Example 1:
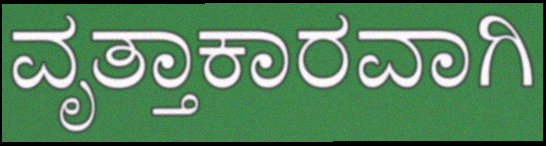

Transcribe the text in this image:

ವೃತ್ತಾಕಾರವಾಗಿ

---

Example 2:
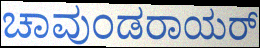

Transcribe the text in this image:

ಚಾವುಂಡರಾಯರ್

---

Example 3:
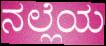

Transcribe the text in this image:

ನಲ್ಲೆಯ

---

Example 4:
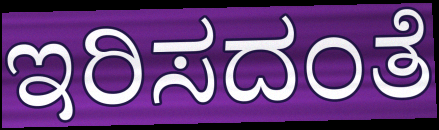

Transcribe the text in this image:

ಇರಿಸದಂತೆ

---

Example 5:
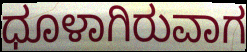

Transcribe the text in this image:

ಧೂಳಾಗಿರುವಾಗ